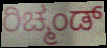
ರಿಚ್ಮಂಡ್